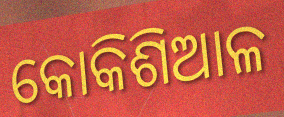
କୋକିଶିଆଳ